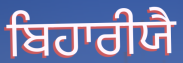
ਬਿਹਾਰੀਯੈ